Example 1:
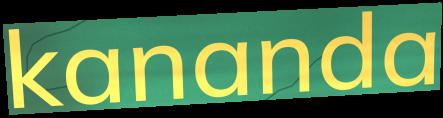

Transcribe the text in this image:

kananda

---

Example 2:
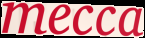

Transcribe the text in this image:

mecca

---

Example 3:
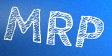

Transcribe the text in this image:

MRP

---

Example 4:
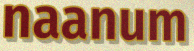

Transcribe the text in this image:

naanum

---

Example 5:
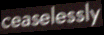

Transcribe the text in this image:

ceaselessly